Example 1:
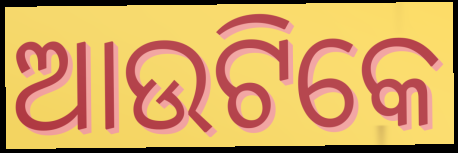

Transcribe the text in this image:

ଆଉଟିକେ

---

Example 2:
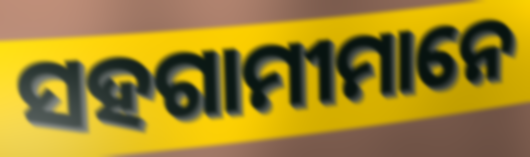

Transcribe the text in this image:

ସହଗାମୀମାନେ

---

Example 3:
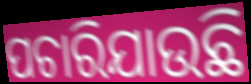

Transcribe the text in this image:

ପଚାରିଯାଉଛି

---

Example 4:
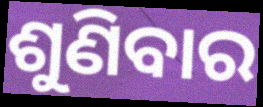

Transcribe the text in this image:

ଶୁଣିବାର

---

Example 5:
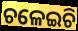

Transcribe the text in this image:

ଚଳେଇଚି